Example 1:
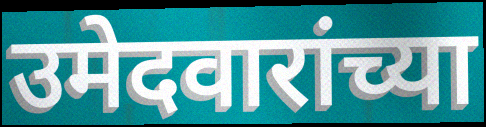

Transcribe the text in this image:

उमेदवारांच्या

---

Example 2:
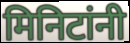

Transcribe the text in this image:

मिनिटांनी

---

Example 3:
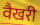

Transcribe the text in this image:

वैखरी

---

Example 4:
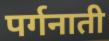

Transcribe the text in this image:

पर्गनाती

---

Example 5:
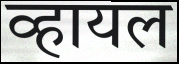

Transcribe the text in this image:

व्हायल